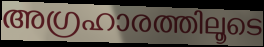
അഗ്രഹാരത്തിലൂടെ